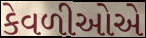
કેવળીઓએ